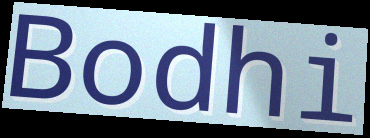
Bodhi